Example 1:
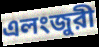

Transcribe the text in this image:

এলংজুরী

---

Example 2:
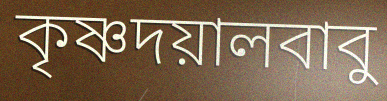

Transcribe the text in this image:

কৃষ্ণদয়ালবাবু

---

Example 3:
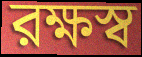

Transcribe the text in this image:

রক্ষস্ব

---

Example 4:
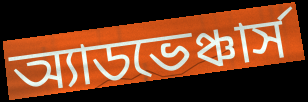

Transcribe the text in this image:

অ্যাডভেঞ্চার্স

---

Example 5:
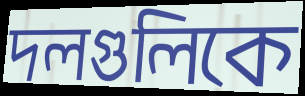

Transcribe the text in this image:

দলগুলিকে